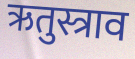
ऋतुस्त्राव